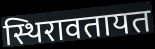
स्थिरावतायत